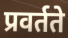
प्रवर्तते